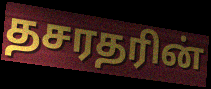
தசரதரின்